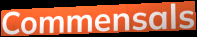
Commensals